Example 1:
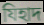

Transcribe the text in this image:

যিহাদ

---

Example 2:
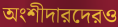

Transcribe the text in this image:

অংশীদারদেরও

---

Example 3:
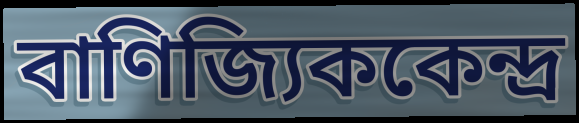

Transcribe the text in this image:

বাণিজ্যিককেন্দ্র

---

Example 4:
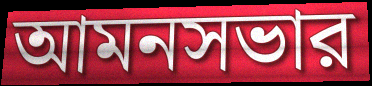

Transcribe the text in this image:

আমনসভার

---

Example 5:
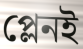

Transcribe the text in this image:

প্লেনই